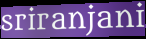
sriranjani